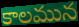
కాలమున